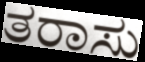
ತರಾಸು